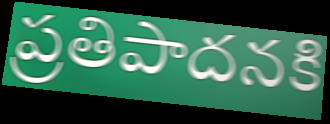
ప్రతిపాదనకి